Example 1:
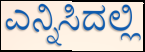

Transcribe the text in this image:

ಎನ್ನಿಸಿದಲ್ಲಿ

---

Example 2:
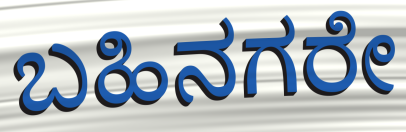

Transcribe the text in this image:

ಬಹಿನಗರೇ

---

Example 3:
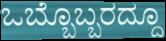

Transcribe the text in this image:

ಒಬ್ಬೊಬ್ಬರದ್ದೂ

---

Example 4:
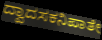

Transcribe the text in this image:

ದ್ವಾದಸಕನಿಪಾತೇ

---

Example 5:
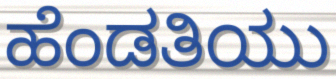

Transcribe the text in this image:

ಹೆಂಡತಿಯು